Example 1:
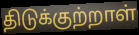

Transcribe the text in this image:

திடுக்குற்றாள்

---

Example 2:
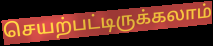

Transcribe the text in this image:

செயற்பட்டிருக்கலாம்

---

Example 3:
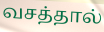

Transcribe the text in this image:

வசத்தால்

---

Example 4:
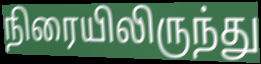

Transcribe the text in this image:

நிரையிலிருந்து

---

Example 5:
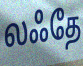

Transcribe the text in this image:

லஃதே